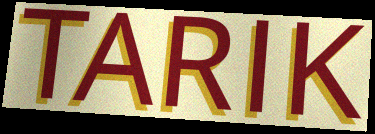
TARIK